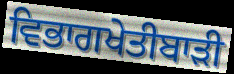
ਵਿਭਾਗਖੇਤੀਬਾੜੀ